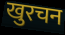
खुरचन